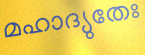
മഹാദ്യുതേഃ